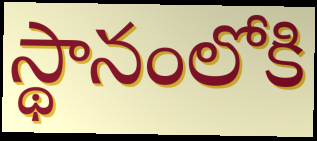
స్థానంలోకి